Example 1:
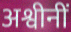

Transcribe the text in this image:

अश्वीनीं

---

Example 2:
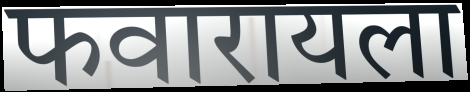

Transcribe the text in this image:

फवारायला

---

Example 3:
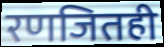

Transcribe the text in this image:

रणजितही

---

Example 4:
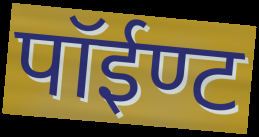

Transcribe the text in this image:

पॉईण्ट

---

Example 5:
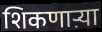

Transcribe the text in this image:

शिकणाऱ्‍या